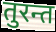
तुरन्त